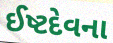
ઈષ્ટદેવના